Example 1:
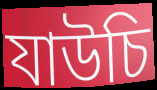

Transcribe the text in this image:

যাউচি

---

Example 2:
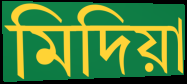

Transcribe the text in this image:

মিদিয়া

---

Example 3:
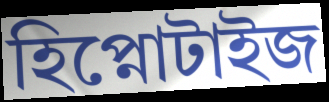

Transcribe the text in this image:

হিপ্নোটাইজ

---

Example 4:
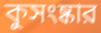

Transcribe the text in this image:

কুসংষ্কার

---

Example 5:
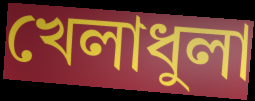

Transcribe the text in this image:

খেলাধুলা